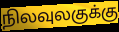
நிலவுலகுக்கு